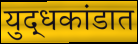
युद्धकांडात